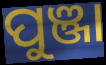
ପୁଞ୍ଜା